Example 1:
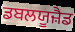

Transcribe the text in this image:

ਡਬਲਯੂਜ਼ੈਡ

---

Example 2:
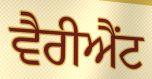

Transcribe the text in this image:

ਵੈਰੀਐਂਟ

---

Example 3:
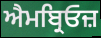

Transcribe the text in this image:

ਐਮਬ੍ਰਿਓਜ਼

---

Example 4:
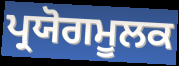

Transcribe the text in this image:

ਪ੍ਰਯੋਗਮੂਲਕ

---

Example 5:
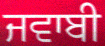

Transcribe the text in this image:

ਜਵਾਬੀ